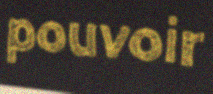
pouvoir